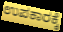
ಉಪಕಾರಕ್ಕೆ